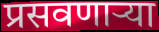
प्रसवणाऱ्या